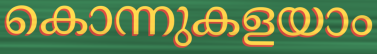
കൊന്നുകളയാം